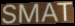
SMAT